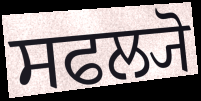
ਸਫਲ੍ਯੋ